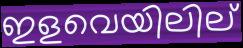
ഇളവെയിലില്